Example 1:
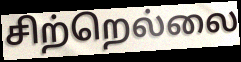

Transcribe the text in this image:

சிற்றெல்லை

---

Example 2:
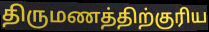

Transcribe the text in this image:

திருமணத்திற்குரிய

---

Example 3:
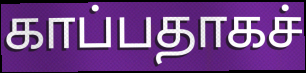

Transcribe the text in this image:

காப்பதாகச்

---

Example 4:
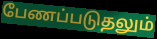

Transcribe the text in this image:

பேணப்படுதலும்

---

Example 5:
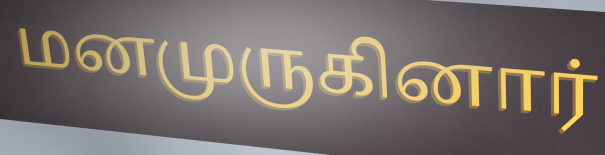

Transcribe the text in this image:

மனமுருகினார்